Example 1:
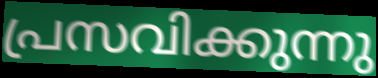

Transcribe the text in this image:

പ്രസവിക്കുന്നു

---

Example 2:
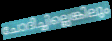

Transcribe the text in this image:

ചോദിച്ചില്ലെങ്കിലും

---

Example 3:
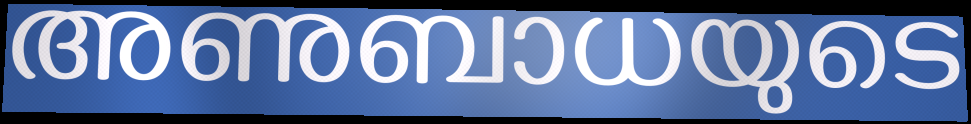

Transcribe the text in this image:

അണുബാധയുടെ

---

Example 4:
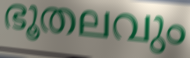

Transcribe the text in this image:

ഭൂതലവും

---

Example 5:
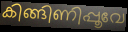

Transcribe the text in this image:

കിങ്ങിണിപ്പൂവേ